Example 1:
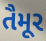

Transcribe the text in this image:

તૈમૂર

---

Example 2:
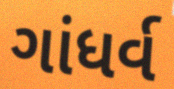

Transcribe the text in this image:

ગાંધર્વ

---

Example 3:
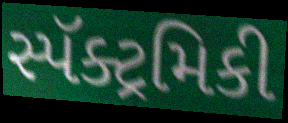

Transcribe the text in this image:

સ્પૅક્ટ્રમિકી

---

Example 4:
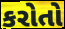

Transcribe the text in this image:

કરોતો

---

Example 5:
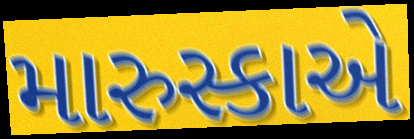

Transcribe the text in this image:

મારુસ્કાએ